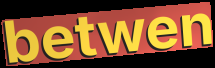
betwen